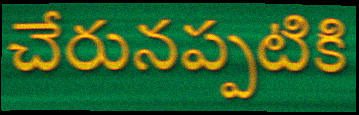
చేరునప్పటికి